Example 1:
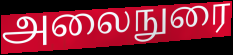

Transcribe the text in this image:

அலைநுரை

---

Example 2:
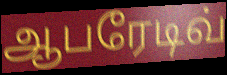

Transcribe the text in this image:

ஆபரேடிவ்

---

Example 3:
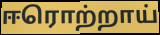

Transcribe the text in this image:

ஈரொற்றாய்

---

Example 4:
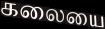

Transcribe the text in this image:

கலையை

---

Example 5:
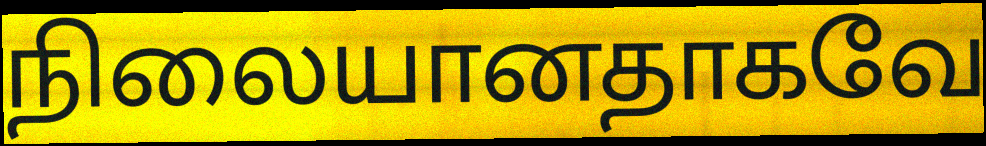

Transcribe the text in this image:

நிலையானதாகவே